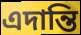
এদান্তি